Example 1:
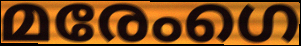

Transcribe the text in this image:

മരേംഗെ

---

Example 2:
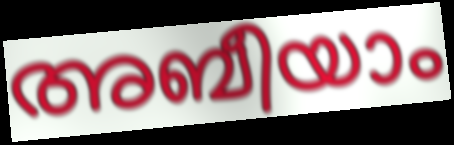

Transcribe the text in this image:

അബീയാം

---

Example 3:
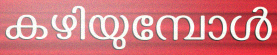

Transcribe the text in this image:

കഴിയുമ്പോൾ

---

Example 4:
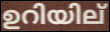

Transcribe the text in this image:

ഉറിയില്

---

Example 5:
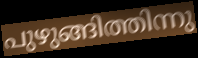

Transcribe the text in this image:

പുഴുങ്ങിത്തിന്നു